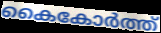
കൈകോർത്ത്